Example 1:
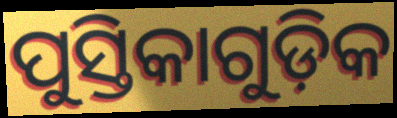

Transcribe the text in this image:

ପୁସ୍ତିକାଗୁଡ଼ିକ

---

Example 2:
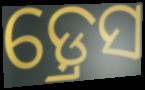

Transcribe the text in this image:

ଡ଼୍ରେସ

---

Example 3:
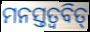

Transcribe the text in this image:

ମନସ୍ତତ୍ଵବିତ୍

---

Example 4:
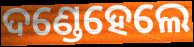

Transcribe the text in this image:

ଦଣ୍ଡେହେଲେ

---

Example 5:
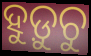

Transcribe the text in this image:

ହୁଡ଼ୁଚୁ